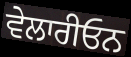
ਵੇਲਾਰੀਓਨ